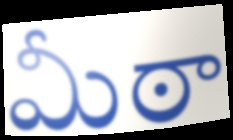
మీఠా